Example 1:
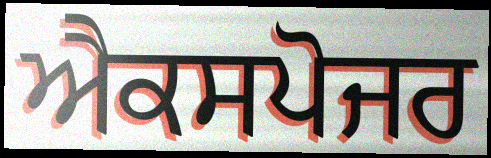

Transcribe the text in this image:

ਐਕਸਪੋਜਰ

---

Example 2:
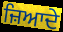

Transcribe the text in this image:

ਜ਼ਿਆਦੇ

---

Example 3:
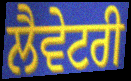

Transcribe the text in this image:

ਲੈਵੇਟਰੀ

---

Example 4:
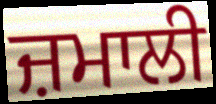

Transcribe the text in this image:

ਜ਼ਮਾਲੀ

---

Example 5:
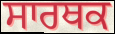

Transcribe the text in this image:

ਸਾਰਥਕ